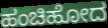
ಹಂಚಿಹೋದ